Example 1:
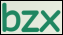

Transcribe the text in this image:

bzx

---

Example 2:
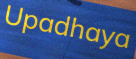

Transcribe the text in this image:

Upadhaya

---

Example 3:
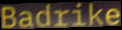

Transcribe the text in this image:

Badrike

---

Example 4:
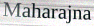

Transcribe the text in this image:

Maharajna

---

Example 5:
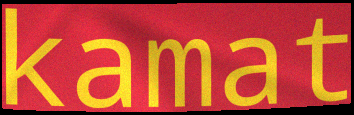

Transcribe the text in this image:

kamat